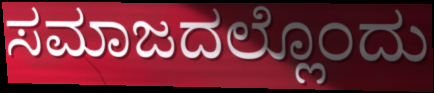
ಸಮಾಜದಲ್ಲೊಂದು